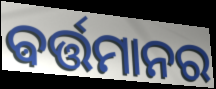
ଵର୍ତ୍ତମାନର